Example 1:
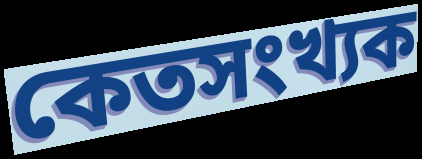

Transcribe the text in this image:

কেতসংখ্যক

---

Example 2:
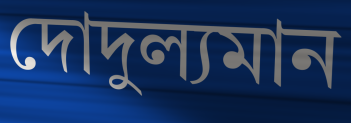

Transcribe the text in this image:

দোদুল্যমান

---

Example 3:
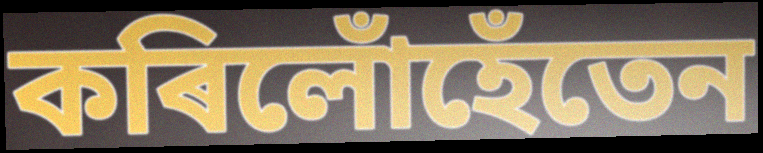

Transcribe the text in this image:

কৰিলোঁহেঁতেন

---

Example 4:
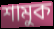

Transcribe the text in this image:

শামুক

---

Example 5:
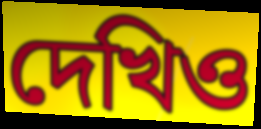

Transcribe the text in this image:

দেখিও